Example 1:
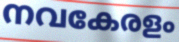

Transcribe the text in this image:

നവകേരളം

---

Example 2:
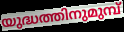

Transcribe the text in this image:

യുദ്ധത്തിനുമുമ്പ്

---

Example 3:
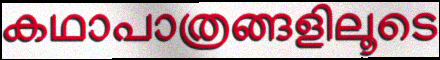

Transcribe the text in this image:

കഥാപാത്രങ്ങളിലൂടെ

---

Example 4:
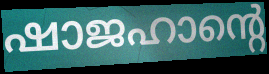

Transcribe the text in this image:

ഷാജഹാന്റെ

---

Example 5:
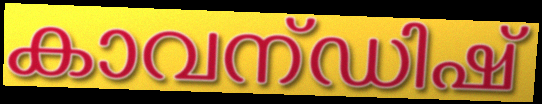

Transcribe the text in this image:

കാവന്ഡിഷ്